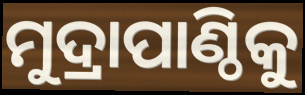
ମୁଦ୍ରାପାଣ୍ଠିକୁ